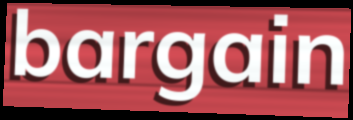
bargain